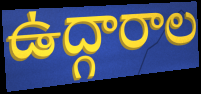
ఉద్గారాల